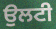
ਉਲਟੀ